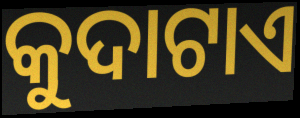
କୁଦାଟାଏ